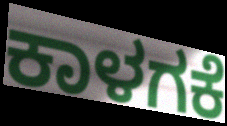
ಕಾಳಗಕೆ